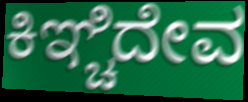
ಕಿಞ್ಚಿದೇವ